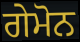
ਗੇਮੋਨ